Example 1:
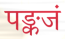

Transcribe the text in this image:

पङ्कजं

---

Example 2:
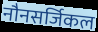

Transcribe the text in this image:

नौनसर्जिकल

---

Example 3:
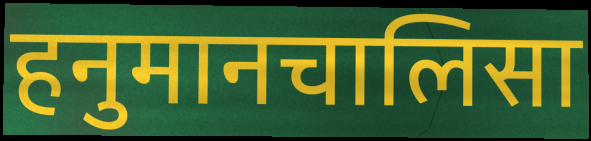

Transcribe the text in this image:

हनुमानचालिसा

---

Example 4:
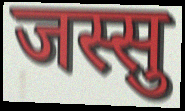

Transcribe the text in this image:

जस्सु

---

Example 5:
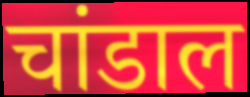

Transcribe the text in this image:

चांडाल